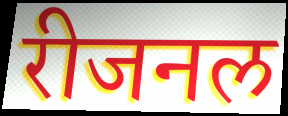
रीजनल